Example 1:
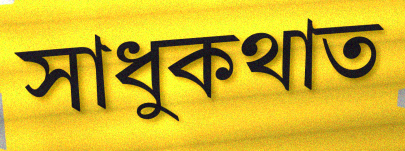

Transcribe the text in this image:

সাধুকথাত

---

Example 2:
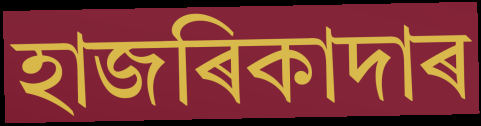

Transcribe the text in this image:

হাজৰিকাদাৰ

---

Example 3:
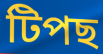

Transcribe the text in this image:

টিপছ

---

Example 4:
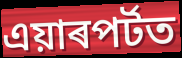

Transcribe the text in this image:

এয়াৰপৰ্টত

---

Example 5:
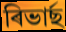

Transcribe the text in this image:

ৰিভাৰ্ছ